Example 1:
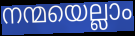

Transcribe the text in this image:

നന്മയെല്ലാം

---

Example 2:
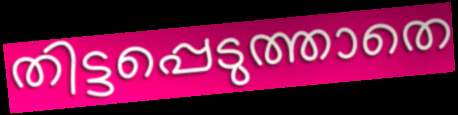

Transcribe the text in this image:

തിട്ടപ്പെടുത്താതെ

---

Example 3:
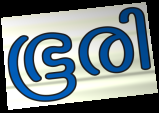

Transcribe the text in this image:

ഭൂരി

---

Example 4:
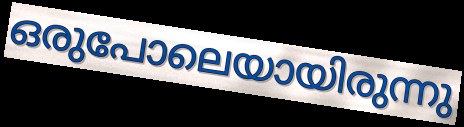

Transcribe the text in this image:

ഒരുപോലെയായിരുന്നു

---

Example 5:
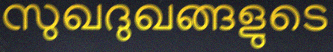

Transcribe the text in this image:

സുഖദുഖങ്ങളുടെ